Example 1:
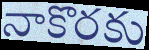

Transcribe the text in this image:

నాకొరకు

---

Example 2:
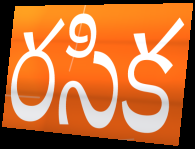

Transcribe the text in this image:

రసిక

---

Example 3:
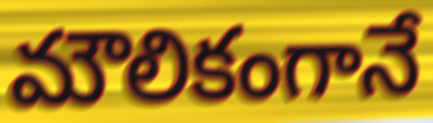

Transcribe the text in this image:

మౌలికంగానే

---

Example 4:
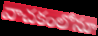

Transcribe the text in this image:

వాచకంలోనూ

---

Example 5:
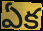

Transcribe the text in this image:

ఏక